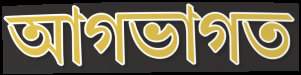
আগভাগত